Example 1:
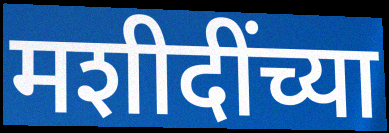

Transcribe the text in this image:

मशीदींच्या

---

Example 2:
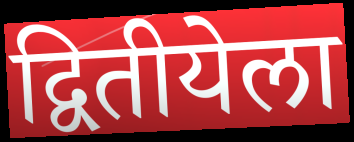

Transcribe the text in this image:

द्वितीयेला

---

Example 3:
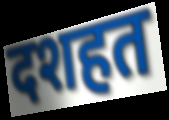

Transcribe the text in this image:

दशहत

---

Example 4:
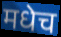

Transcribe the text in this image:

मधेच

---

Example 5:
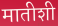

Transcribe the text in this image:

मातीशी